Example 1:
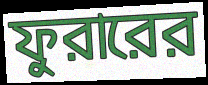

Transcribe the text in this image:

ফুরারের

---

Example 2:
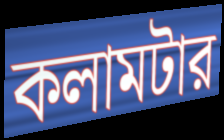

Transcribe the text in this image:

কলামটার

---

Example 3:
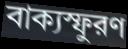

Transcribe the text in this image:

বাক্যস্ফুরণ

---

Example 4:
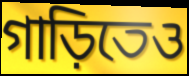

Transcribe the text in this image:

গাড়িতেও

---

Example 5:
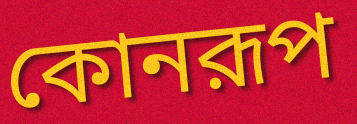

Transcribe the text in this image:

কোনরূপ